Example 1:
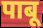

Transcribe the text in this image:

पाबू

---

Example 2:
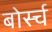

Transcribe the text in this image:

बोर्स्च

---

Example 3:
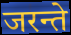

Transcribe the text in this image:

जरन्ते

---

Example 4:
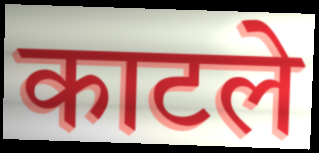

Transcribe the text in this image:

काटले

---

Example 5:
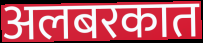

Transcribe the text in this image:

अलबरकात